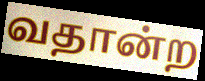
வதான்ற